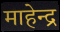
माहेन्द्र